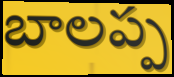
బాలప్ప